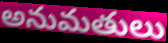
అనుమతులు